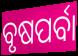
ବୃଷପର୍ବା